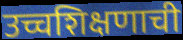
उच्चशिक्षणाची